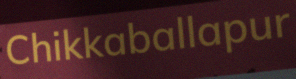
Chikkaballapur